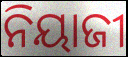
ନିୟାଜୀ